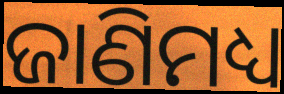
ଜାଣିମଧ୍ୟ